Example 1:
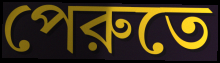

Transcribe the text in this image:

পেরুতে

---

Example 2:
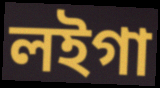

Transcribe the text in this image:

লইগা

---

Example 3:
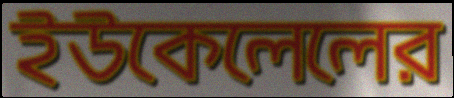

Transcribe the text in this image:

ইউকেলেলের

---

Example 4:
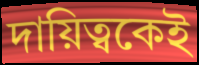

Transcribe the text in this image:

দায়িত্বকেই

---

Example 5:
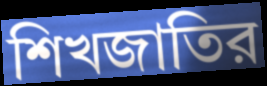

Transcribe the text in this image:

শিখজাতির